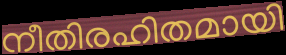
നീതിരഹിതമായി